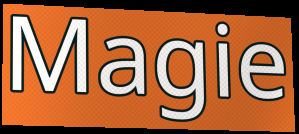
Magie